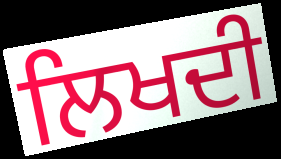
ਲਿਖਦੀ